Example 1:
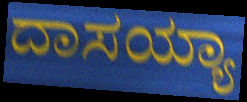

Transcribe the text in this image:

ದಾಸಯ್ಯಾ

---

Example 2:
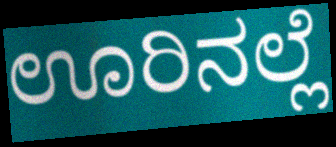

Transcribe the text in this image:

ಊರಿನಲ್ಲೆ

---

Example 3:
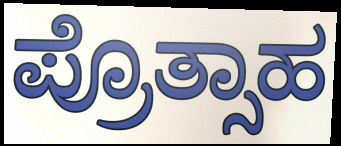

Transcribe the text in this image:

ಪ್ರೊತ್ಸಾಹ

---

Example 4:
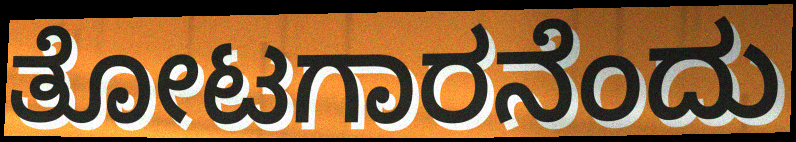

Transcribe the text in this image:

ತೋಟಗಾರನೆಂದು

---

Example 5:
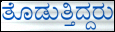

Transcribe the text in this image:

ತೊಡುತ್ತಿದ್ದರು